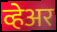
व्हेअर